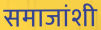
समाजांशी